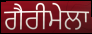
ਗੈਰੀਮੇਲਾ